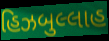
હિઝબુલ્લાહ